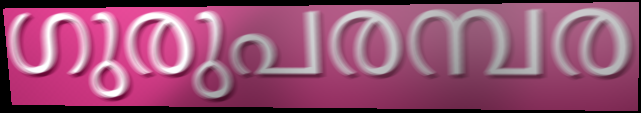
ഗുരുപരമ്പര